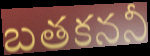
బతకననీ